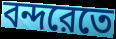
বন্দরেতে